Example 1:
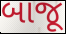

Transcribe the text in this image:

બાજૂ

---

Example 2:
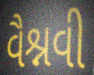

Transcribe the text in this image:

વૈશ્નવી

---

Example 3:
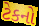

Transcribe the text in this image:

ટેકનો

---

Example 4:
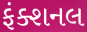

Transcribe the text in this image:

ફંક્શનલ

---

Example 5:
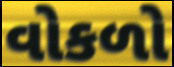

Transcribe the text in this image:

વોકળો